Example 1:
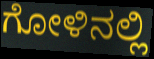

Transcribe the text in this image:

ಗೋಳಿನಲ್ಲಿ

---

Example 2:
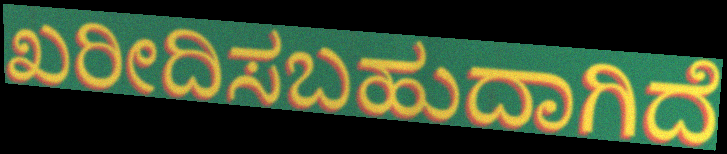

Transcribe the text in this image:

ಖರೀದಿಸಬಹುದಾಗಿದೆ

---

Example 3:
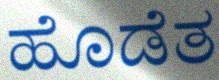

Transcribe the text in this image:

ಹೊಡೆತ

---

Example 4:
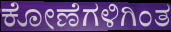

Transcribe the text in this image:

ಕೋಣೆಗಳಿಗಿಂತ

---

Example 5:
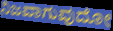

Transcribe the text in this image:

ನಿಜವಾಗುವುದೋ